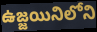
ఉజ్జయినిలోని